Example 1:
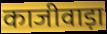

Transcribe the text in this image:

काजीवाड़ा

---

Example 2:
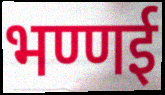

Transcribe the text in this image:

भण्णई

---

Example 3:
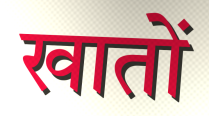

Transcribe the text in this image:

खातों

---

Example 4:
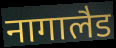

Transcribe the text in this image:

नागालैड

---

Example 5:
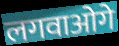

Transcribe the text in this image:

लगवाओगे